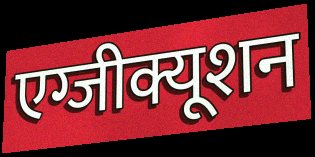
एग्जीक्यूशन